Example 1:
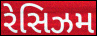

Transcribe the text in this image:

રેસિઝમ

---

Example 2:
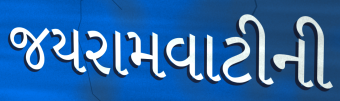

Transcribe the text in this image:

જયરામવાટીની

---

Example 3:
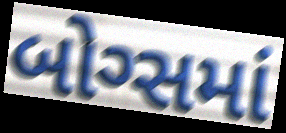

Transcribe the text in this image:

બોગ્સમાં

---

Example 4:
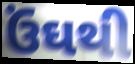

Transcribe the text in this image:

ઉંઘથી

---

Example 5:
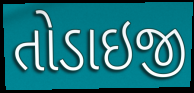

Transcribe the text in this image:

તોડાઇજી